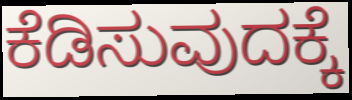
ಕೆಡಿಸುವುದಕ್ಕೆ